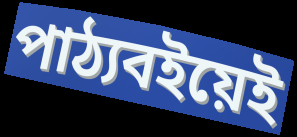
পাঠ্যবইয়েই